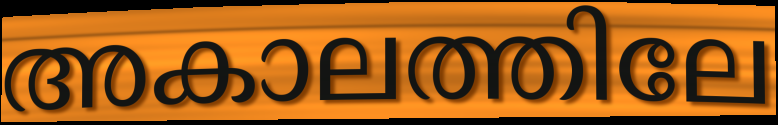
അകാലത്തിലേ